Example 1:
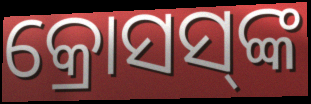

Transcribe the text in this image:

କ୍ରୋସସ୍‌ଙ୍କ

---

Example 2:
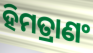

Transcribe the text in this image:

ହିମତ୍ରାଣଂ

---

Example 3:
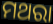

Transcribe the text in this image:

ମଥରା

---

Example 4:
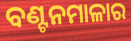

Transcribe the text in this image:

ବଣ୍ଟନମାଳାର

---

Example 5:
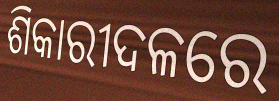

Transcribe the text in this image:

ଶିକାରୀଦଳରେ